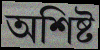
অশিষ্ট